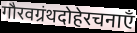
गौरवग्रंथदोहेरचनाएँ